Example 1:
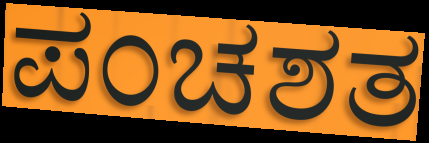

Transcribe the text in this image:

ಪಂಚಶತ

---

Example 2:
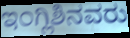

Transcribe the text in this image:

ಇಂಗ್ಲಿಶಿನವರು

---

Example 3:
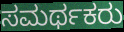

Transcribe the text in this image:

ಸಮರ್ಥಕರು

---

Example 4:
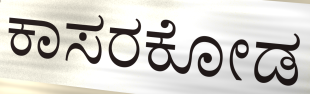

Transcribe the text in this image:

ಕಾಸರಕೋಡ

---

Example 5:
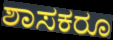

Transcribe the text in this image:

ಶಾಸಕರೂ